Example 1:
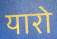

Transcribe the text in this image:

यारो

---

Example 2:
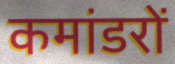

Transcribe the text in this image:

कमांडरों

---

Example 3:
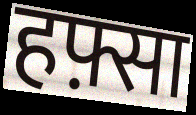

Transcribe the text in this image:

हफ़्सा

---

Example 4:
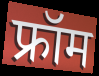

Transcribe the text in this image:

फ्रॉम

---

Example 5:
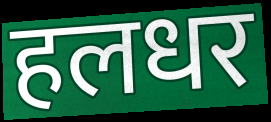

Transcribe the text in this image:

हलधर